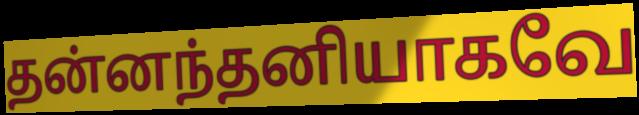
தன்னந்தனியாகவே